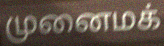
முனைமக்